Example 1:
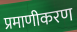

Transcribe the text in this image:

प्रमाणीकरण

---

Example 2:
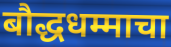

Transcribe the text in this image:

बौद्धधम्माचा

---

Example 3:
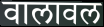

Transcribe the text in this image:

वालावल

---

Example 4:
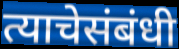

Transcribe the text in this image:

त्याचेसंबंधी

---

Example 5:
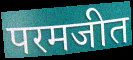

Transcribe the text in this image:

परमजीत